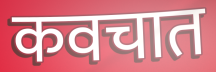
कवचात